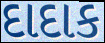
દાદાક